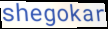
shegokar